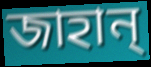
জাহান্